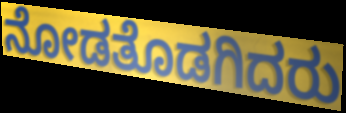
ನೋಡತೊಡಗಿದರು